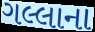
ગલ્લાના